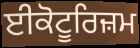
ਈਕੋਟੂਰਿਜ਼ਮ